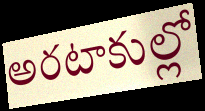
అరటాకుల్లో